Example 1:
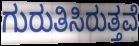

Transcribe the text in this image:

ಗುರುತಿಸಿರುತ್ತವೆ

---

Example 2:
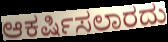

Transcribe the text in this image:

ಆಕರ್ಷಿಸಲಾರದು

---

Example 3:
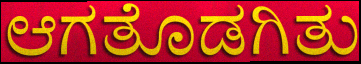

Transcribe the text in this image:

ಆಗತೊಡಗಿತು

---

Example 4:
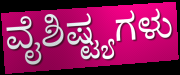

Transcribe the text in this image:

ವೈಶಿಷ್ಟ್ಯಗಳು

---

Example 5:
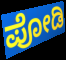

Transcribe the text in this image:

ಪೋಡಿ